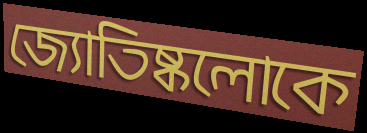
জ্যোতিষ্কলোকে